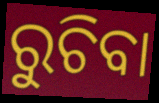
ରୁଚିବା